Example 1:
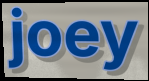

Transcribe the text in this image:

joey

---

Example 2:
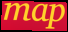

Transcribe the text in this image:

map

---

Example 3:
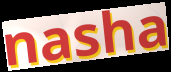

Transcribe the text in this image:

nasha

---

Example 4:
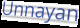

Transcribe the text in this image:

Unnayan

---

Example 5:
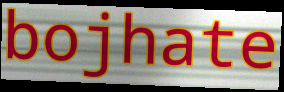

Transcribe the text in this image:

bojhate